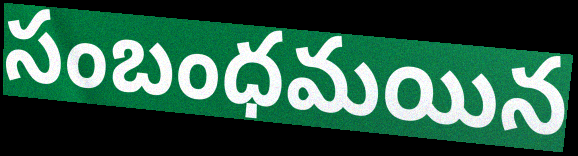
సంబంధమయిన